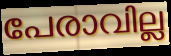
പേരാവില്ല